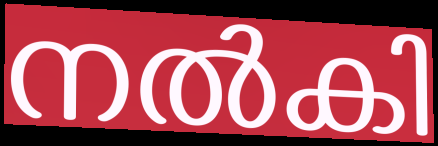
നൽകി